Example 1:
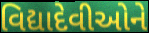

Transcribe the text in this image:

વિદ્યાદેવીઓને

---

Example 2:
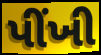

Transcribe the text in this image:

પીંખી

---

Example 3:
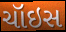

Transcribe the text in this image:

ચૉઇસ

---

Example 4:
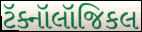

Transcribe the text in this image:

ટૅક્નૉલૉજિકલ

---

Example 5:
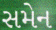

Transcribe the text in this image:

સમેન